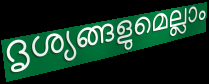
ദൃശ്യങ്ങളുമെല്ലാം